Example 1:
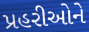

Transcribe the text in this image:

પ્રહરીઓને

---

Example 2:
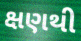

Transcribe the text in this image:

ક્ષણથી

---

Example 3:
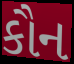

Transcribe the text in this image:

કૌન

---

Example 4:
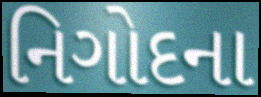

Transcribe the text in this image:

નિગોદના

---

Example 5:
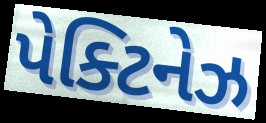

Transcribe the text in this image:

પેક્ટિનેઝ